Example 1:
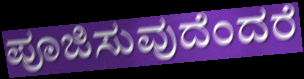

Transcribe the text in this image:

ಪೂಜಿಸುವುದೆಂದರೆ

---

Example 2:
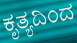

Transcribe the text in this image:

ಕೃತ್ಯದಿಂದ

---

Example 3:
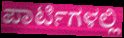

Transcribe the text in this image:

ಪಾರ್ಟಿಗಳಲ್ಲಿ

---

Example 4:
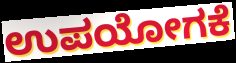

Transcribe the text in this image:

ಉಪಯೋಗಕೆ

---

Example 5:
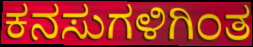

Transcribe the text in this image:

ಕನಸುಗಳಿಗಿಂತ